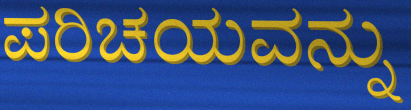
ಪರಿಚಯವನ್ನು